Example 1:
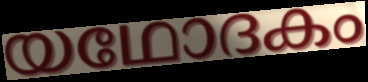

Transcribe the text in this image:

യഥോദകം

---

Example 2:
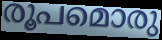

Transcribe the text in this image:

രൂപമൊരു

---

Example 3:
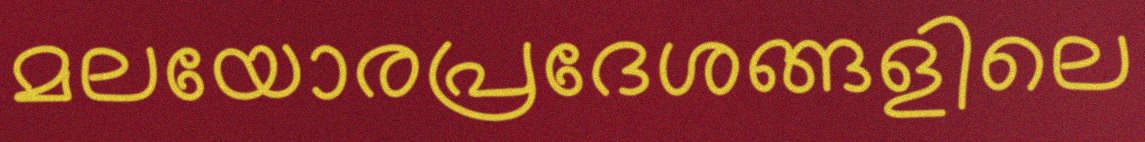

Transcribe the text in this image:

മലയോരപ്രദേശങ്ങളിലെ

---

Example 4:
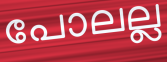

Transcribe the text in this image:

പോലല്ല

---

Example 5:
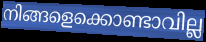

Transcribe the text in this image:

നിങ്ങളെക്കൊണ്ടാവില്ല